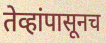
तेव्हांपासूनच